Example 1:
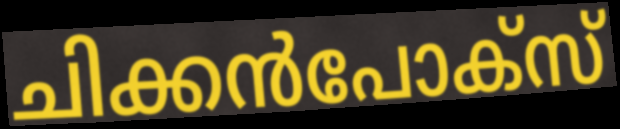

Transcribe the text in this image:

ചിക്കൻപോക്സ്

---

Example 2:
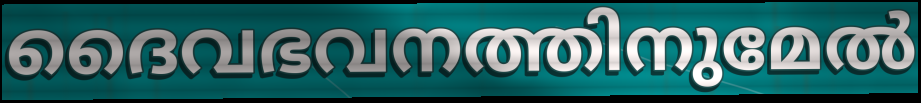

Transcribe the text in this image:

ദൈവഭവനത്തിനുമേൽ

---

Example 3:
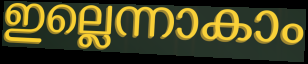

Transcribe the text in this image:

ഇല്ലെന്നാകാം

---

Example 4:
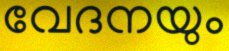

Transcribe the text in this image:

വേദനയും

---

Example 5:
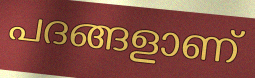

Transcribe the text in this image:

പദങ്ങളാണ്